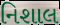
નિશાલ